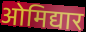
ओमिद्यार